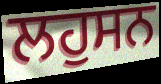
ਲਹੁਸਨ